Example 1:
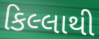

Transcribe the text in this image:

કિલ્લાથી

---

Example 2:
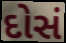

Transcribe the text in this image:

દોસં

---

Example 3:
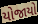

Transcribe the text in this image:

યોજાયો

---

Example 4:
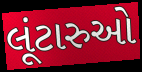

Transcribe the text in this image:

લૂંટારુઓ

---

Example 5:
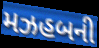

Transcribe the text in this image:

મઝહબની